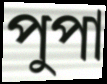
পুপা